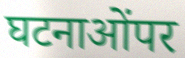
घटनाओंपर